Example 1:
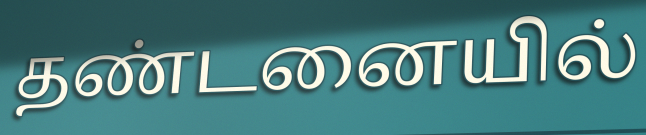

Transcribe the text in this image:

தண்டனையில்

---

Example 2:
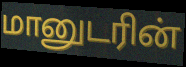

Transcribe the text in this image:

மானுடரின்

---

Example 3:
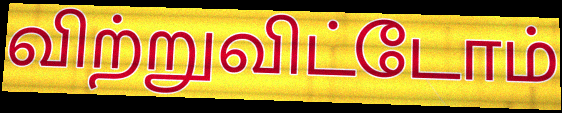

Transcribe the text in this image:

விற்றுவிட்டோம்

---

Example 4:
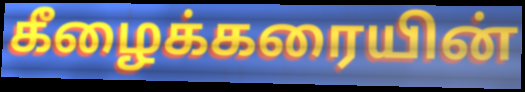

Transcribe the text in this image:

கீழைக்கரையின்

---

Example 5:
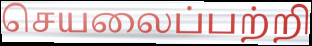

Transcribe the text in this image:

செயலைப்பற்றி